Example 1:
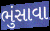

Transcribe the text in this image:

ભુંસાવા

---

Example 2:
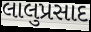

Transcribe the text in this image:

લાલુપ્રસાદ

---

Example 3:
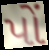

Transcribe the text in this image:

પોં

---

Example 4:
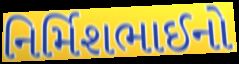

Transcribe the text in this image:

નિર્મિશભાઈનો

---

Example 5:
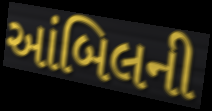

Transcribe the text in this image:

આંબિલની